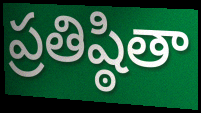
ప్రతిష్ఠితా